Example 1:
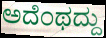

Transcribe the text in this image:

ಅದೆಂಥದ್ದು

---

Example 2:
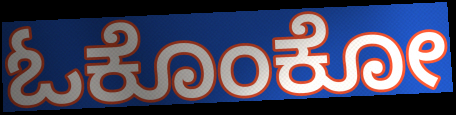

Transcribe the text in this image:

ಓಕೊಂಕೋ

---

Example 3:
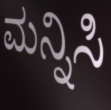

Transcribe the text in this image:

ಮನ್ನಿಸಿ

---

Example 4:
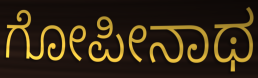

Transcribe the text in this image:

ಗೋಪೀನಾಥ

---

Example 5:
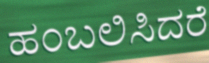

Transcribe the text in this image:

ಹಂಬಲಿಸಿದರೆ